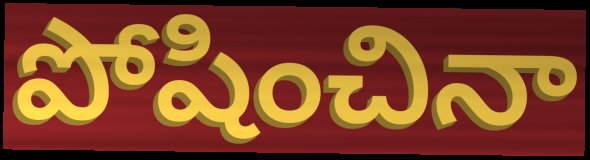
పోషించినా